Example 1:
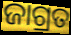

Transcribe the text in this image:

ଜାଗ୍ରତ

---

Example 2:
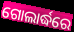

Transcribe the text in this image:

ଗୋଲାର୍ଦ୍ଧରେ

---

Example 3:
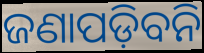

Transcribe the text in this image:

ଜଣାପଡ଼ିବନି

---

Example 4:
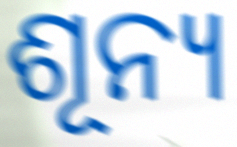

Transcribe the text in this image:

ଶୂନ୍ୟ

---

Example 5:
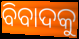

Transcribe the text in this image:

ବିବାଦକୁ